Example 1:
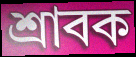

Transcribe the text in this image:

শ্রাবক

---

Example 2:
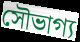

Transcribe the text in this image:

সৌভাগ্য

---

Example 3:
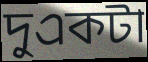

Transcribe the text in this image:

দুএকটা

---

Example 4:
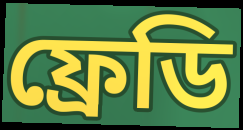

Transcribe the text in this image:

ফ্রেডি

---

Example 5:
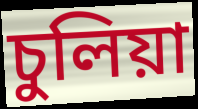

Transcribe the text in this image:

চুলিয়া